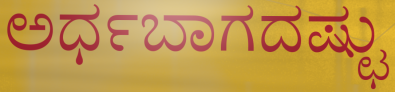
ಅರ್ಧಬಾಗದಷ್ಟು